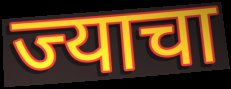
ज्याचा